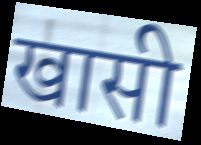
खासी